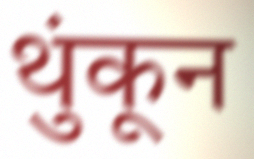
थुंकून